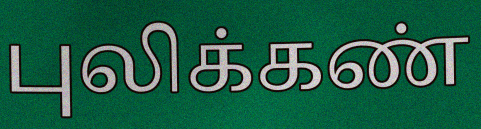
புலிக்கண்